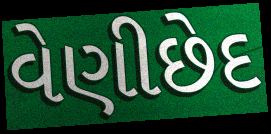
વેણીછેદ